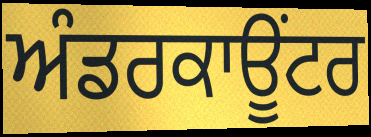
ਅੰਡਰਕਾਊਂਟਰ